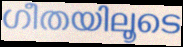
ഗീതയിലൂടെ